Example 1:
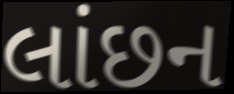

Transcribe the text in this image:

લાંછન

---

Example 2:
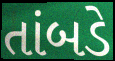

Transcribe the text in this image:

તાંબડે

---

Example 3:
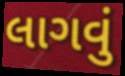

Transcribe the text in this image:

લાગવું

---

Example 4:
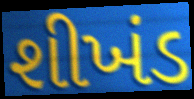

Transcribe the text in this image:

શીખંડ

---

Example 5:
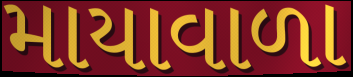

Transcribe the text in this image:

માયાવાળા